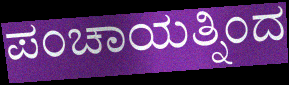
ಪಂಚಾಯತ್ನಿಂದ